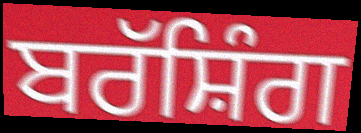
ਬਰੱਸ਼ਿੰਗ